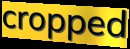
cropped